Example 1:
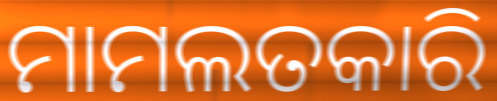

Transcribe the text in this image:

ମାମଲତକାରି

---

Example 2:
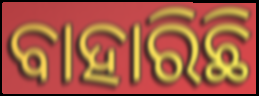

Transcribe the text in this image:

ବାହାରିଛି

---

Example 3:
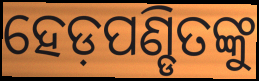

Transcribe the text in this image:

ହେଡ଼ପଣ୍ଡିତଙ୍କୁ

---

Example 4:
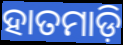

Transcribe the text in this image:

ହାତମାଡ଼ି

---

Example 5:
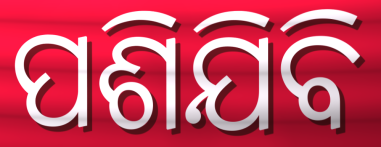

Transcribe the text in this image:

ପଶିଯିବି